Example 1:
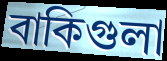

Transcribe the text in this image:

বাকিগুলা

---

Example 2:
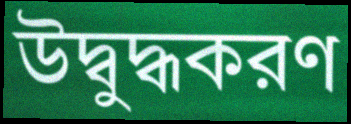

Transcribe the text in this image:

উদ্বুদ্ধকরণ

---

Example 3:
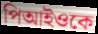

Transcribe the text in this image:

পিআইওকে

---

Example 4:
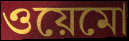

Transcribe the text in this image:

ওয়েমো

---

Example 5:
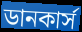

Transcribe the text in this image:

ডানকার্স